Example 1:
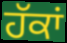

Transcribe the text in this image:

ਹੱਕਾਂ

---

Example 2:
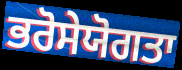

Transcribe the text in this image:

ਭਰੋਸੇਯੋਗਤਾ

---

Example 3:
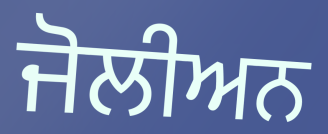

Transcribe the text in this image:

ਜੋਲੀਅਨ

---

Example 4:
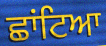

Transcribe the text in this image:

ਛਾਂਟਿਆ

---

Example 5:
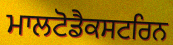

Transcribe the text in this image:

ਮਾਲਟੋਡੈਕਸਟਰਿਨ